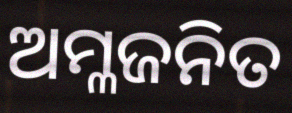
ଅମ୍ଳଜନିତ